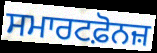
ਸਮਾਰਟਫ਼ੋਨਜ਼